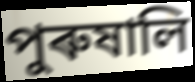
পুৰুষালি